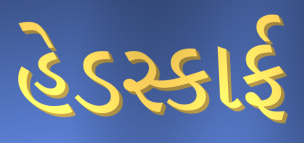
હેડસ્કાર્ફ